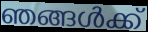
ഞങ്ങൾക്ക്